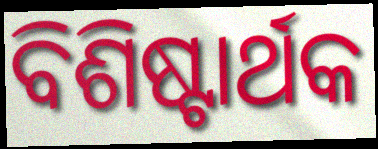
ବିଶିଷ୍ଟାର୍ଥକ